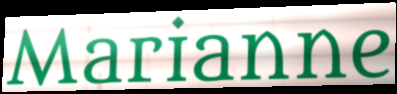
Marianne